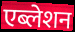
एब्लेशन